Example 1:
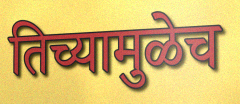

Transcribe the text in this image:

तिच्यामुळेच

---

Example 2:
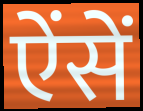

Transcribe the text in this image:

ऐंसें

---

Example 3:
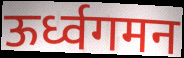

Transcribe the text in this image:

ऊर्ध्वगमन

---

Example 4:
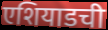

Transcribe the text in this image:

एशियाडची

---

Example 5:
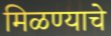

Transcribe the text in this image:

मिळण्याचे